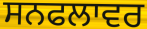
ਸਨਫਲਾਵਰ